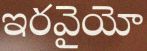
ఇరవైయో